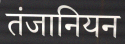
तंजानियन